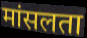
मांसलता